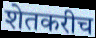
शेतकरीच